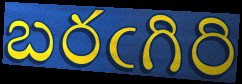
బరఁగిరి